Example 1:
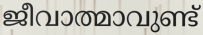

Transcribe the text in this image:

ജീവാത്മാവുണ്ട്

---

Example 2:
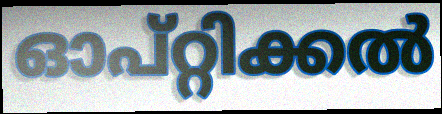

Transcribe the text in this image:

ഓപ്റ്റിക്കൽ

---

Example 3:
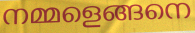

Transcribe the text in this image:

നമ്മളെങ്ങനെ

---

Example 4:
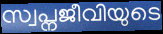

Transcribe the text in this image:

സ്വപ്നജീവിയുടെ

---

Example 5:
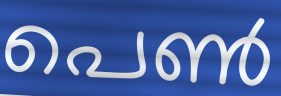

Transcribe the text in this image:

പെൺ